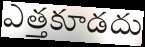
ఎత్తకూడదు